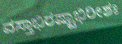
ವಸ್ತಾಭಿರಷ್ಟಾಭಿರೀಶಃ